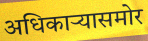
अधिकाऱ्यासमोर